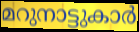
മറുനാട്ടുകാർ